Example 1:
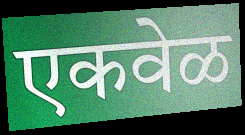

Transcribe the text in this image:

एकवेळ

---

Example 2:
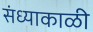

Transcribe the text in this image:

संध्‍याकाळी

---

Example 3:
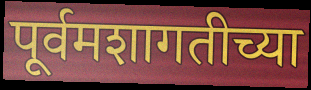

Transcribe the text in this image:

पूर्वमशागतीच्या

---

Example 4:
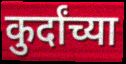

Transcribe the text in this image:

कुर्दांच्या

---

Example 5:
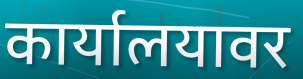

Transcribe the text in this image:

कार्यालयावर